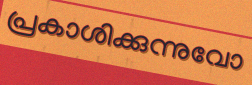
പ്രകാശിക്കുന്നുവോ